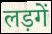
लड़गें